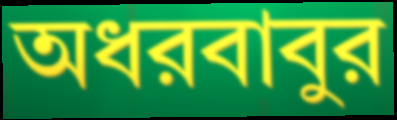
অধরবাবুর